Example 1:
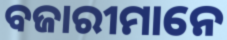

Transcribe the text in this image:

ବଜାରୀମାନେ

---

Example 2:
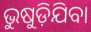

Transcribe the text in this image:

ଭୁଷୁଡ଼ିଯିବା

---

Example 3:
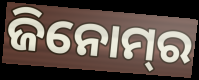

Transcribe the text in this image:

ଜିନୋମ୍‌ର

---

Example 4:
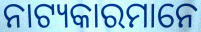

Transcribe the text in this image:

ନାଟ୍ୟକାରମାନେ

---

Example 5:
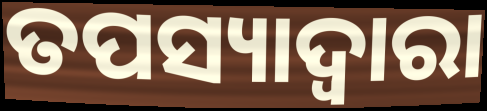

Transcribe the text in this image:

ତପସ୍ୟାଦ୍ୱାରା